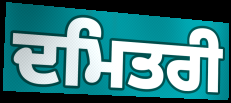
ਦਮਿਤਰੀ